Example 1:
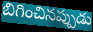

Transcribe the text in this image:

బిగించినప్పుడు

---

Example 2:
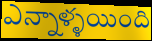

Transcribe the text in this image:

ఎన్నాళ్ళయింది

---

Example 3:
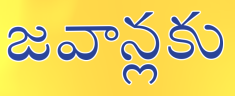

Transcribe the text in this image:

జవాన్లకు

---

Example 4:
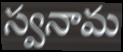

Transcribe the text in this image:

స్వనామ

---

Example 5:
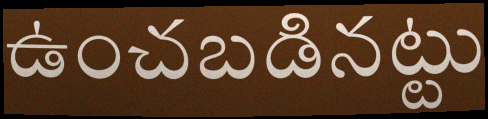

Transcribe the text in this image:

ఉంచబడినట్టు